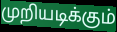
முறியடிக்கும்